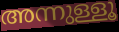
അന്നുള്ളൂ